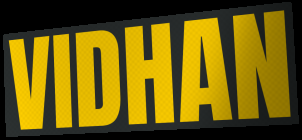
VIDHAN